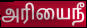
அரியைநீ